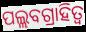
ପଲ୍ଲବଗ୍ରାହିତ୍ୱ